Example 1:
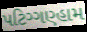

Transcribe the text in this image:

પટિગ્ગણ્હામ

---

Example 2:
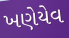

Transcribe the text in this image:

ખણેયેવ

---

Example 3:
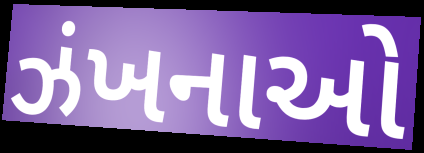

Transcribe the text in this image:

ઝંખનાઓ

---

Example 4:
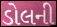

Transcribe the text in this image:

ડોલની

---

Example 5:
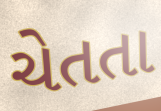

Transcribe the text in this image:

ચેતતા